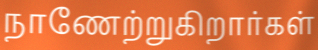
நாணேற்றுகிறார்கள்